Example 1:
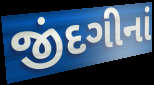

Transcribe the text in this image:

જીંદગીનાં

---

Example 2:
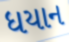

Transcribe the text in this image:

ધયાન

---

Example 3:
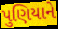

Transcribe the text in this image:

પુણિયાને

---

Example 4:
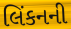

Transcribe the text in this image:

લિંકનની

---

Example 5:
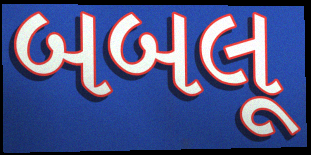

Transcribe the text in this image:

બબલૂ